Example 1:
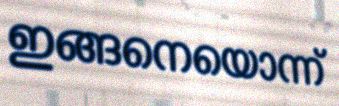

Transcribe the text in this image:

ഇങ്ങനെയൊന്ന്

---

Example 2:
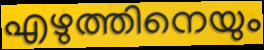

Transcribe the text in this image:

എഴുത്തിനെയും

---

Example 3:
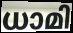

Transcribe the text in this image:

ധാമി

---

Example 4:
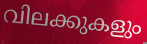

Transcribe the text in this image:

വിലക്കുകളും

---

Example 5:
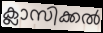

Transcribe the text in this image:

ക്ലാസിക്കൽ